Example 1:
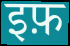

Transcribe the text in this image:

इफ़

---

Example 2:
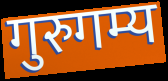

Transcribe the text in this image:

गुरुगम्य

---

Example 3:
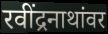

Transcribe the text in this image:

रवींद्रनाथांवर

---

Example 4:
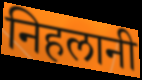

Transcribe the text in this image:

निहलानी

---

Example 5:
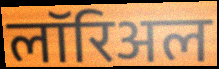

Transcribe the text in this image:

लॉरिअल